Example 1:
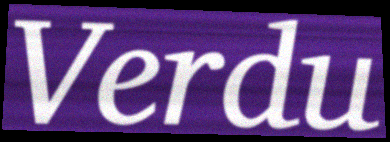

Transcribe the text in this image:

Verdu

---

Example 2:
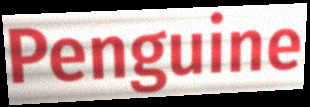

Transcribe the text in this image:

Penguine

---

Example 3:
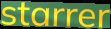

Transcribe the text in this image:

starrer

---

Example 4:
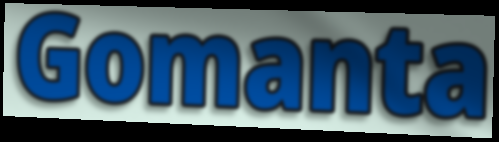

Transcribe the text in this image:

Gomanta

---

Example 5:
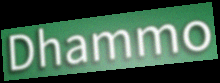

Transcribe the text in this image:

Dhammo